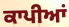
ਕਾਪੀਆਂ